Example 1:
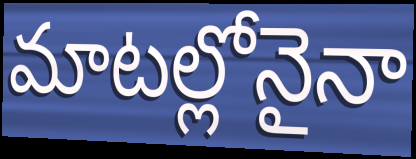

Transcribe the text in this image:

మాటల్లోనైనా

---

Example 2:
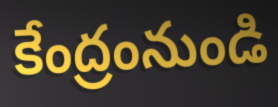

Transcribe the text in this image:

కేంద్రంనుండి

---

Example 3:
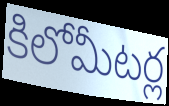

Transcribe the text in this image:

కిలోమీటర్ల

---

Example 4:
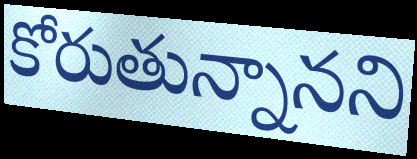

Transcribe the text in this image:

కోరుతున్నానని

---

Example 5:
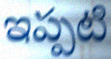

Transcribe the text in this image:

ఇప్పటి